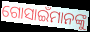
ଗୋସାଇଁମାନଙ୍କୁ